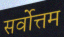
सर्वोत्तम